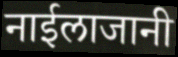
नाईलाजानी